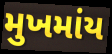
મુખમાંય